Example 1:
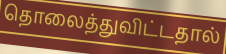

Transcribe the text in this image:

தொலைத்துவிட்டதால்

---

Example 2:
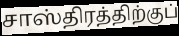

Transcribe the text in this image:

சாஸ்திரத்திற்குப்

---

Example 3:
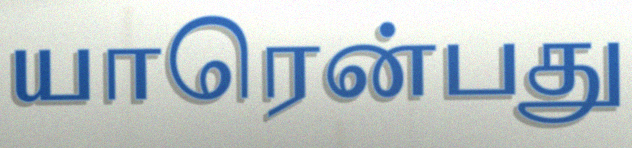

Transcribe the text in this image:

யாரென்பது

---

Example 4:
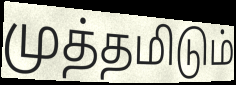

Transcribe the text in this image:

முத்தமிடும்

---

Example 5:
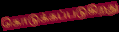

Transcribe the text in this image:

கொடுக்கப்படுகிறது